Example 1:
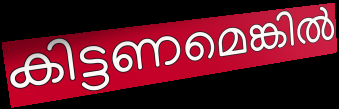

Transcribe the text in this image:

കിട്ടണമെങ്കിൽ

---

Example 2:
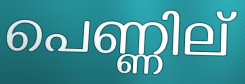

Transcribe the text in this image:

പെണ്ണില്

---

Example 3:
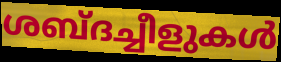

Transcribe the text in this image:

ശബ്ദച്ചീളുകൾ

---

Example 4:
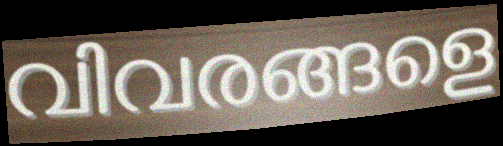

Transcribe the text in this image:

വിവരങ്ങളെ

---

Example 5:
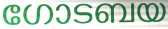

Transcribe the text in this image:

ഗോടബയ